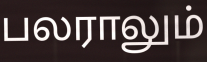
பலராலும்